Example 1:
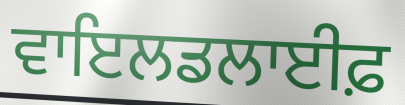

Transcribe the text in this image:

ਵਾਇਲਡਲਾਈਫ਼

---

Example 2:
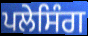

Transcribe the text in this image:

ਪਲੇਸਿੰਗ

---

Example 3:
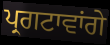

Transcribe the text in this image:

ਪ੍ਰਗਟਾਵਾਂਗੇ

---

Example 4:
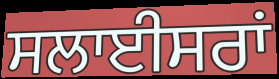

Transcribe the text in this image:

ਸਲਾਈਸਰਾਂ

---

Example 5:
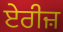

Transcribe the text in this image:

ਏਰੀਜ਼